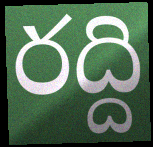
రద్ది